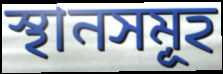
স্থানসমূহ